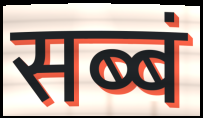
सब्बं